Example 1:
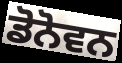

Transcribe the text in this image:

ਡੋਨੋਵਨ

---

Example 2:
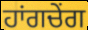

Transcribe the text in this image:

ਹਾਂਗਚੇਂਗ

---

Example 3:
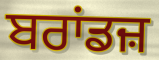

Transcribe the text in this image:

ਬਰਾਂਡਜ਼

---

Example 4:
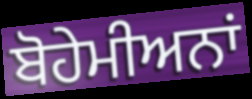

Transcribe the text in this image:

ਬੋਹੇਮੀਅਨਾਂ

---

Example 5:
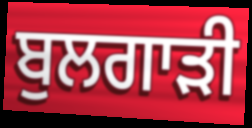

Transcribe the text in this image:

ਬੁਲਗਾੜੀ